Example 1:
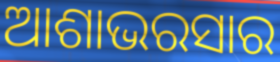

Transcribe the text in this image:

ଆଶାଭରସାର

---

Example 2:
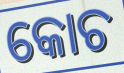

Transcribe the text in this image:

କୋଚ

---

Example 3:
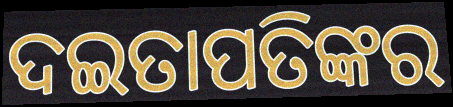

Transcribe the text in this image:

ଦଇତାପତିଙ୍କର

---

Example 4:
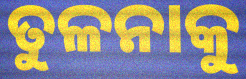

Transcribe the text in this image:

ତୁଳନାକୁ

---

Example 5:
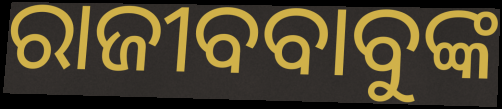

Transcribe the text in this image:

ରାଜୀବବାବୁଙ୍କ